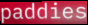
paddies